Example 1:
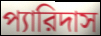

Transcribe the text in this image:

প্যারিদাস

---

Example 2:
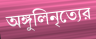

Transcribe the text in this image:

অঙ্গুলিনৃত্যের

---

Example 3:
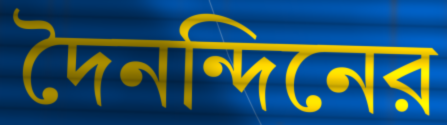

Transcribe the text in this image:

দৈনন্দিনের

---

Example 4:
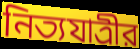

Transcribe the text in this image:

নিত্যযাত্রীর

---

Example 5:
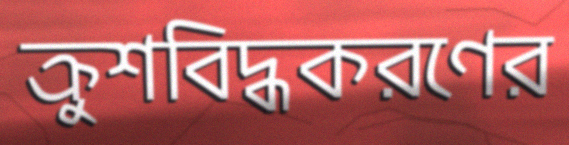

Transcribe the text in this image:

ক্রুশবিদ্ধকরণের